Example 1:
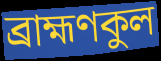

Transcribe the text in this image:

ব্রাহ্মণকুল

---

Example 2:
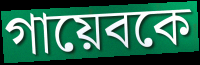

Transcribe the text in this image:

গায়েবকে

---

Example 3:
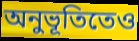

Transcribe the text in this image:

অনুভূতিতেও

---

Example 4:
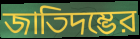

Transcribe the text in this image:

জাতিদম্ভের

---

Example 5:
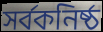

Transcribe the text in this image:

সর্বকনিষ্ঠ